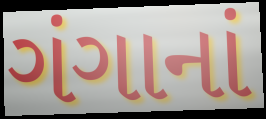
ગંગાનાં